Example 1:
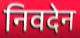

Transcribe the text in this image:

निवदेन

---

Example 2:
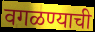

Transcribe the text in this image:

वगळण्याची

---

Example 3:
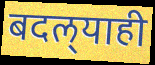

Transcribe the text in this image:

बदल्याही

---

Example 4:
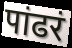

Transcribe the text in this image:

पांढरं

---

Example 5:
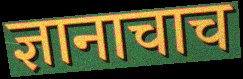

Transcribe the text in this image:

ज्ञानाचाच